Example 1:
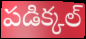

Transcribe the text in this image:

పడిక్కల్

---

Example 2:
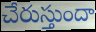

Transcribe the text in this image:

చేరుస్తుందా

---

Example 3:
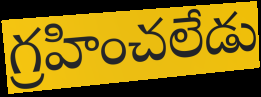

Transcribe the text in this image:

గ్రహించలేడు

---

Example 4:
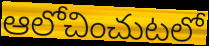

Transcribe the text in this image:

ఆలోచించుటలో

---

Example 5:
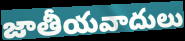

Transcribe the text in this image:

జాతీయవాదులు